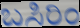
ಬಸಿರಿಂ